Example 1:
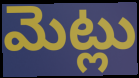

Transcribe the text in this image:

మెట్లు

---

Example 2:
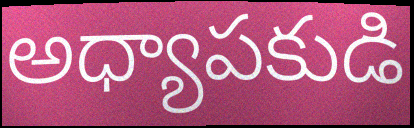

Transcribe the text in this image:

అధ్యాపకుడి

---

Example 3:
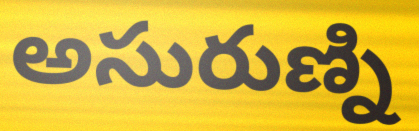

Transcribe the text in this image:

అసురుణ్ని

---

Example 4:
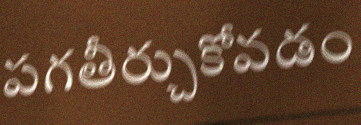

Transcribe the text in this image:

పగతీర్చుకోవడం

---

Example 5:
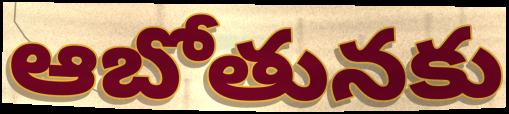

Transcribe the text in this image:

ఆబోతునకు